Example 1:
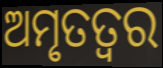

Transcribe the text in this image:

ଅମୃତତ୍ଵର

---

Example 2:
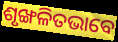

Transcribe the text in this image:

ଶୃଙ୍ଖଳିତଭାବେ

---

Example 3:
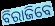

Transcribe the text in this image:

ବିରାଜିବେ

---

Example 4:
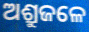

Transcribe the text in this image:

ଅଶ୍ରୁଜଳେ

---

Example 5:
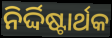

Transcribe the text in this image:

ନିର୍ଦ୍ଦିଷ୍ଟାର୍ଥକ